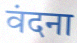
वंदना